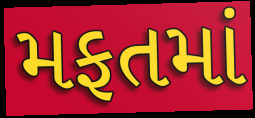
મફતમાં